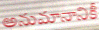
అనుమానానికీ